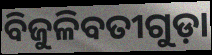
ବିଜୁଳିବତୀଗୁଡ଼ା